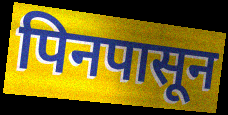
पिनपासून